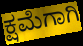
ಕ್ಷಮೆಗಾಗಿ